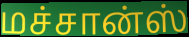
மச்சான்ஸ்